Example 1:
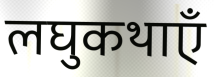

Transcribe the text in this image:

लघुकथाएँ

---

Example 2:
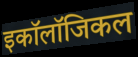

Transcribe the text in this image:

इकॉलॉजिकल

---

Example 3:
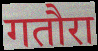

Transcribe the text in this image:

गतौरा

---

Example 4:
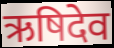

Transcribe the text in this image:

ऋषिदेव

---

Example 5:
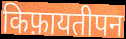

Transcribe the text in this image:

किफ़ायतीपन